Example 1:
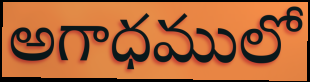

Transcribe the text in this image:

అగాధములో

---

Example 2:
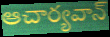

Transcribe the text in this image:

ఆచార్యవాన్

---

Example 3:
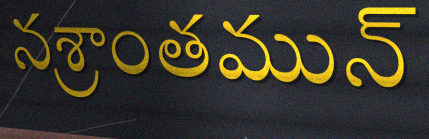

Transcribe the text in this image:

నశ్రాంతమున్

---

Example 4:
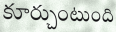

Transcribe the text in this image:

కూర్చుంటుంది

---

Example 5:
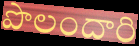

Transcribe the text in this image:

పొలందారి